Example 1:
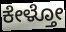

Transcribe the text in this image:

ಕೇಳ್ತೋ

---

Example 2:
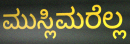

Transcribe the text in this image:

ಮುಸ್ಲಿಮರೆಲ್ಲ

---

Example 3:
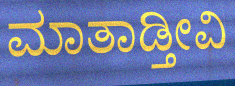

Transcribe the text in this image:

ಮಾತಾಡ್ತೀವಿ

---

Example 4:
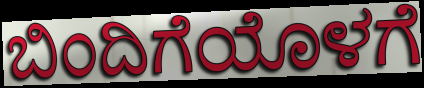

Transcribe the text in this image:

ಬಿಂದಿಗೆಯೊಳಗೆ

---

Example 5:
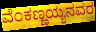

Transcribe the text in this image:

ವೆಂಕಣ್ಣಯ್ಯನವರ